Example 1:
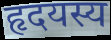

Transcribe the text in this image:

हृदयस्य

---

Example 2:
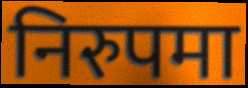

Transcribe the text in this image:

निरुपमा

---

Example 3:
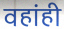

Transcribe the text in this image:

वहांही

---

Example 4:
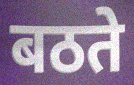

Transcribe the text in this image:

बठते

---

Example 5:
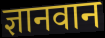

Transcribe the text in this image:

ज्ञानवान